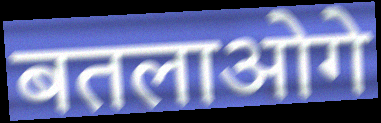
बतलाओगे